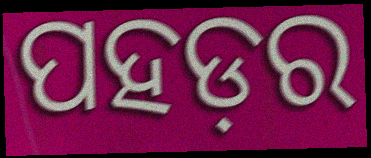
ପହଡ଼ର